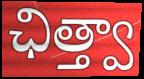
ఛిత్త్వా